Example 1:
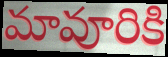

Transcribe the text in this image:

మావూరికి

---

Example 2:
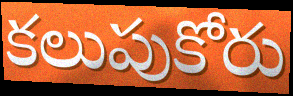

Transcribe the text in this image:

కలుపుకోరు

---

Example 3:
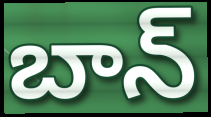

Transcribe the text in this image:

బాన్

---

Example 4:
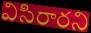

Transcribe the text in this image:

విసిరారని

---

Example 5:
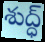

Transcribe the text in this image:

శుద్ధ్